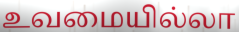
உவமையில்லா